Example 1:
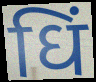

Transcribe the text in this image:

धिं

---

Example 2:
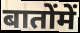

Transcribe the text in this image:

बातोंमें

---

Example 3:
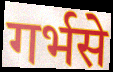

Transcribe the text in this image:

गर्भसे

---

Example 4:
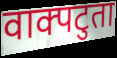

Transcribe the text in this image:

वाक्पटुता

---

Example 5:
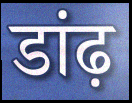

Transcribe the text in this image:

डांढ़